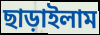
ছাড়াইলাম